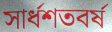
সার্ধশতবর্ষ